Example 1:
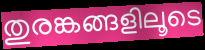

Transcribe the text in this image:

തുരങ്കങ്ങളിലൂടെ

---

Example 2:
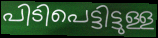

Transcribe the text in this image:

പിടിപെട്ടിട്ടുള്ള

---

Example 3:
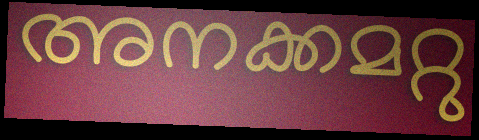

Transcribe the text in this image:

അനക്കമറ്റു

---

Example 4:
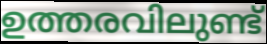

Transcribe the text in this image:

ഉത്തരവിലുണ്ട്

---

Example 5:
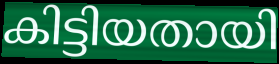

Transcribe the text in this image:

കിട്ടിയതായി